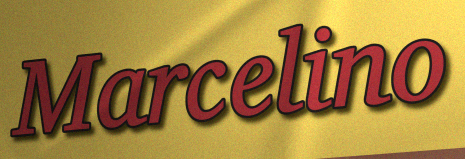
Marcelino